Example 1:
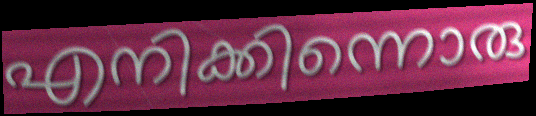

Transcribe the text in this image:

എനിക്കിന്നൊരു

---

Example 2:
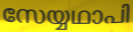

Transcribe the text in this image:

സേയ്യഥാപി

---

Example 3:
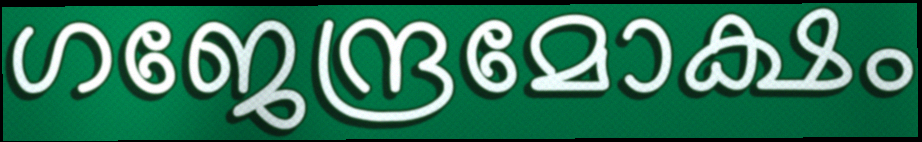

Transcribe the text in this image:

ഗജേന്ദ്രമോക്ഷം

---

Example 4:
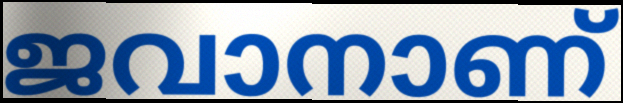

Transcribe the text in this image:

ജവാനാണ്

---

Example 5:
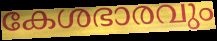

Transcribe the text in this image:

കേശഭാരവും